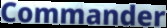
Commander